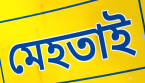
মেহতাই